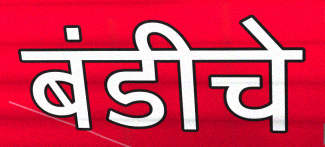
बंडीचे